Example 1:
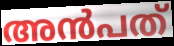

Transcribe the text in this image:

അൻപത്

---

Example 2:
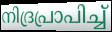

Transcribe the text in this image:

നിദ്രപ്രാപിച്ച്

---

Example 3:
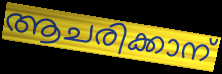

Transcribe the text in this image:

ആചരിക്കാന്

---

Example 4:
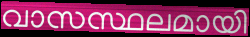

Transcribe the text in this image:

വാസസ്ഥലമായി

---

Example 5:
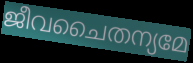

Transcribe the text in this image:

ജീവചൈതന്യമേ